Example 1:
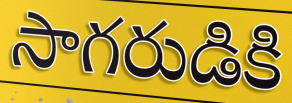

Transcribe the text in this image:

సాగరుడికి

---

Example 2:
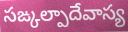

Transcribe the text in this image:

సఙ్కల్పాదేవాస్య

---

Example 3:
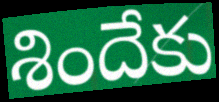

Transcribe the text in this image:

శిందేకు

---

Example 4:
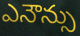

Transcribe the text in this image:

ఎనౌన్సు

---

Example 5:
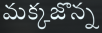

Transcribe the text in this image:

మక్కజొన్న